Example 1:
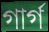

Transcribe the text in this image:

গাৰ্গ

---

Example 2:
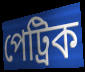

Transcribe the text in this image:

পেট্ৰিক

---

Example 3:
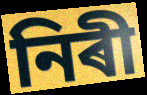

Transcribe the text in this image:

নিৰী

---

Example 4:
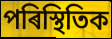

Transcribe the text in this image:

পৰিস্থিতিক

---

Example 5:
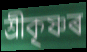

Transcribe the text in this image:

শ্ৰীকৃষ্ণৰ